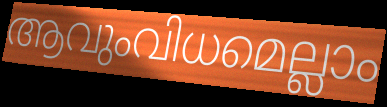
ആവുംവിധമെല്ലാം